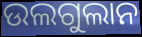
ଉଲଗୁଲାନ